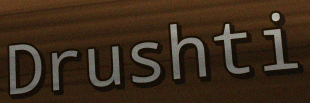
Drushti